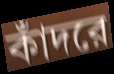
কাঁদরে